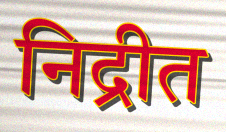
निद्रीत